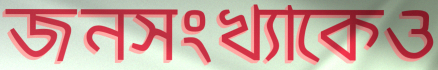
জনসংখ্যাকেও